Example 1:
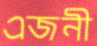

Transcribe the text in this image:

এজনী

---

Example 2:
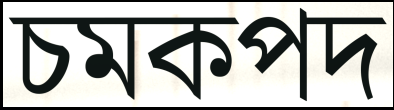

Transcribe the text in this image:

চমকপদ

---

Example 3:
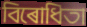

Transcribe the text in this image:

বিৰোধিতা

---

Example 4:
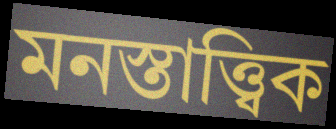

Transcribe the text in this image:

মনস্তাত্ত্বিক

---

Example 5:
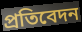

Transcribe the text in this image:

প্ৰতিবেদন